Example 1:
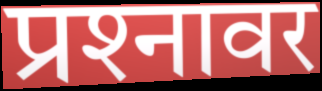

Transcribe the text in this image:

प्रश्‍नावर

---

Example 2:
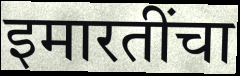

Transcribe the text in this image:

इमारतींचा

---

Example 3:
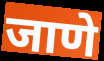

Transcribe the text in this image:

जाणे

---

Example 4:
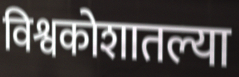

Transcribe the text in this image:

विश्वकोशातल्या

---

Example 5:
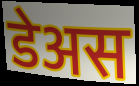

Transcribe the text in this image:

डेअस